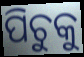
ପିଚୁକୁ